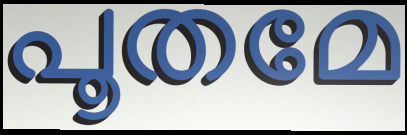
പൂതമേ